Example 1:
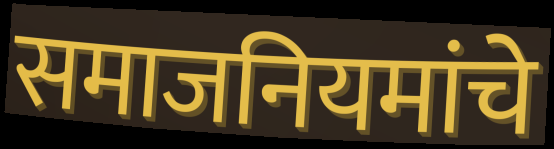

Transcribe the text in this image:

समाजनियमांचे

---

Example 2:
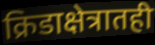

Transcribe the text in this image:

क्रिडाक्षेत्रातही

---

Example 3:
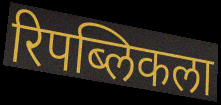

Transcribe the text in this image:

रिपब्लिकला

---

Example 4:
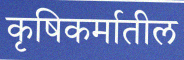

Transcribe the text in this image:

कृषिकर्मातील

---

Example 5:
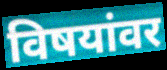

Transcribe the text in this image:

विषयांवर